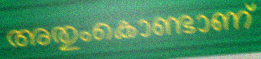
അതുംകൊണ്ടാണ്